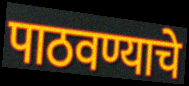
पाठवण्याचे